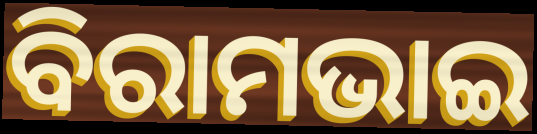
ବିରାମଭାଇ